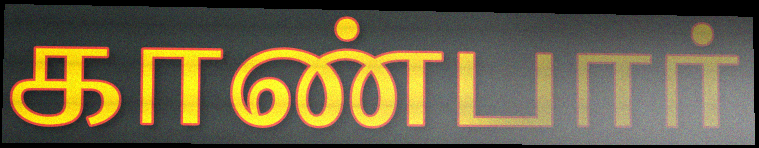
காண்பார்